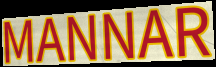
MANNAR